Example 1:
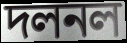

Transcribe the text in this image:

দলনল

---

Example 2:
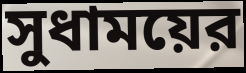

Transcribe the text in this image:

সুধাময়ের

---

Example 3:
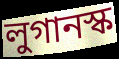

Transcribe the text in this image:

লুগানস্ক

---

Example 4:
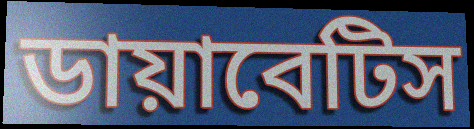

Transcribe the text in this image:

ডায়াবেটিস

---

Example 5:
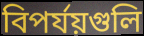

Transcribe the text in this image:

বিপর্যয়গুলি